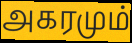
அகரமும்